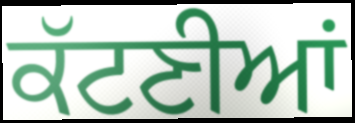
ਕੱਟਣੀਆਂ